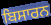
ਬਿਸਾਰਨ